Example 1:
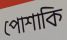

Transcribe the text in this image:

পোশাকি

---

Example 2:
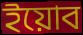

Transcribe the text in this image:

ইয়োব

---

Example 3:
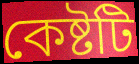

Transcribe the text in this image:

কেষ্টটি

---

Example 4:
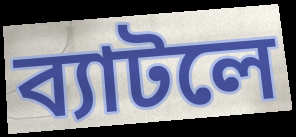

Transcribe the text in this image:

ব্যাটলে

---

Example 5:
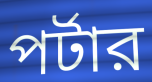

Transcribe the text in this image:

পর্টার